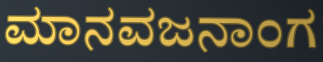
ಮಾನವಜನಾಂಗ